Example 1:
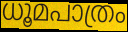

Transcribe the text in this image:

ധൂമപാത്രം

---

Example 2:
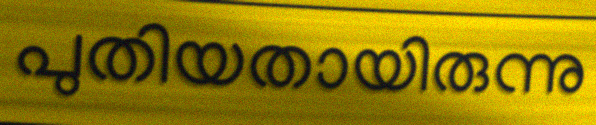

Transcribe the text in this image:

പുതിയതായിരുന്നു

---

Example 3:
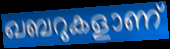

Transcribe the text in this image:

ഖബറുകളാണ്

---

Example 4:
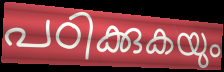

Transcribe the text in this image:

പഠിക്കുകയും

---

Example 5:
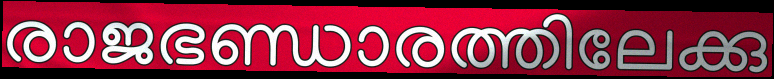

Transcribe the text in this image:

രാജഭണ്ഡാരത്തിലേക്കു